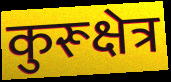
कुरूक्षेत्र